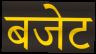
बजेट